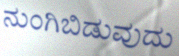
ನುಂಗಿಬಿಡುವುದು